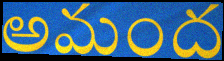
అమంద